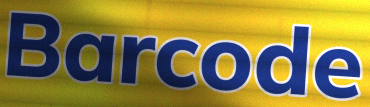
Barcode